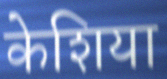
केशिया